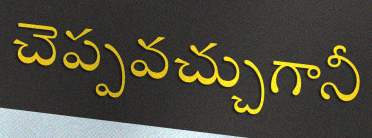
చెప్పవచ్చుగానీ